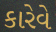
કારેવે